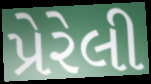
પ્રેરેલી